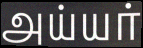
அய்யர்